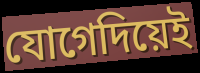
যোগেদিয়েই